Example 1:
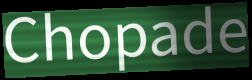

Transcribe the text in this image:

Chopade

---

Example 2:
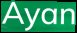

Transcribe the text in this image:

Ayan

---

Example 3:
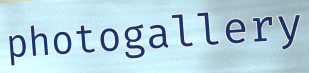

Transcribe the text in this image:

photogallery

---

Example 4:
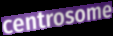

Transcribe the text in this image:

centrosome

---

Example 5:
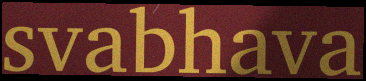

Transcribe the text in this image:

svabhava